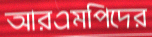
আরএমপিদের